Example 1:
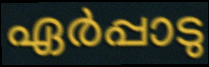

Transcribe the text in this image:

ഏർപ്പാടു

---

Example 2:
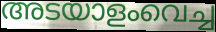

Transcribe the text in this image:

അടയാളംവെച്ച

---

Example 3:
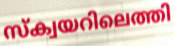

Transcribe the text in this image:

സ്ക്വയറിലെത്തി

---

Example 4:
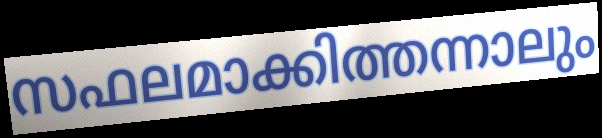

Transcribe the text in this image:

സഫലമാക്കിത്തന്നാലും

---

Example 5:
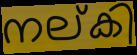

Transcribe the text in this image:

നല്കി